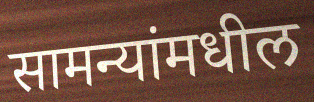
सामन्यांमधील